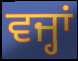
ਵਜ੍ਹਾਂ